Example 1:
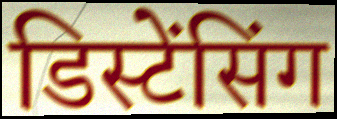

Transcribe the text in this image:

डिस्टेंसिंग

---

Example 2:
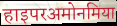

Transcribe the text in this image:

हाइपरअमोनमिया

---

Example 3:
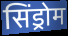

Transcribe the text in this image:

सिंड्रोम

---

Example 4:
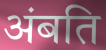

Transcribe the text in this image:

अंबति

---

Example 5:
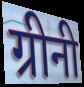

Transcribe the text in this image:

ग्रीनी